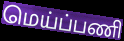
மெய்ப்பணி